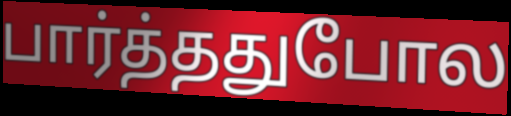
பார்த்ததுபோல